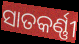
ସାତକର୍ଣ୍ଣୀ